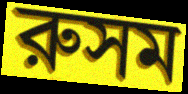
রুসম